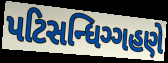
પટિસન્ધિગ્ગહણે